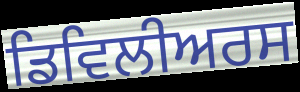
ਡਿਵਿਲੀਅਰਸ